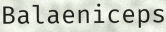
Balaeniceps